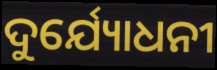
ଦୁର୍ଯ୍ୟୋଧନୀ